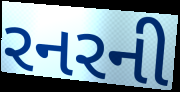
રનરની